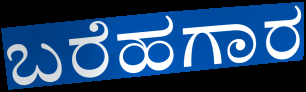
ಬರೆಹಗಾರ